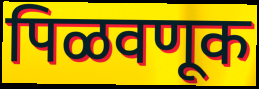
पिळवणूक